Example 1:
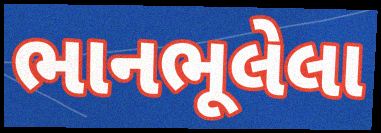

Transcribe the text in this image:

ભાનભૂલેલા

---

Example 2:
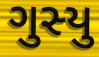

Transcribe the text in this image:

ગુસ્યુ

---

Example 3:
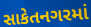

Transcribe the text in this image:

સાકેતનગરમાં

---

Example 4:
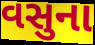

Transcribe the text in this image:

વસુના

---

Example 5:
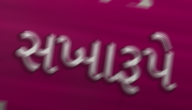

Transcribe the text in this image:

સખારૂપે